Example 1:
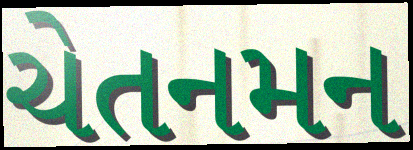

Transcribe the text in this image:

ચેતનમન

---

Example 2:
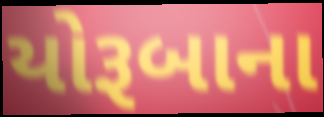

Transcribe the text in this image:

યોરૂબાના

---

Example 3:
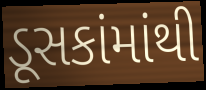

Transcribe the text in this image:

ડૂસકાંમાંથી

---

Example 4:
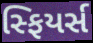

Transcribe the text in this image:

સ્ફિયર્સ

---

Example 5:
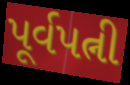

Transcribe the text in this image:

પૂર્વપત્ની